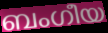
ബംഗീയ